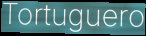
Tortuguero